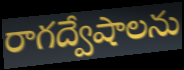
రాగద్వేషాలను